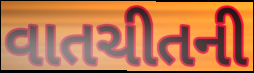
વાતચીતની